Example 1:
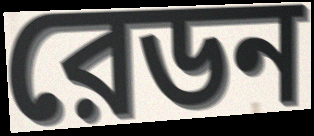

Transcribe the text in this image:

রেডন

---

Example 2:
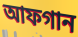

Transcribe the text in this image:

আফগান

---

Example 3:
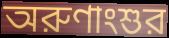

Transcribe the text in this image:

অরুণাংশুর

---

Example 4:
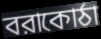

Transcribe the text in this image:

বরাকোঠা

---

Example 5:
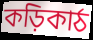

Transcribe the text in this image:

কড়িকাঠ